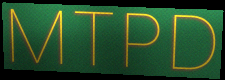
MTPD